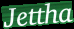
Jettha